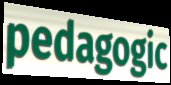
pedagogic